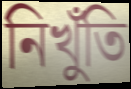
নিখুঁতি